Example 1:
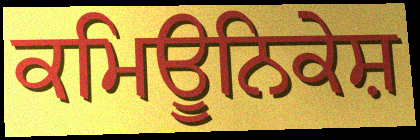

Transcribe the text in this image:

ਕਮਿਊਨਿਕੇਸ਼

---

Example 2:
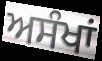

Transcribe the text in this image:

ਅਸੰਖਾਂ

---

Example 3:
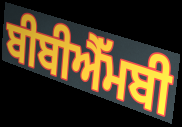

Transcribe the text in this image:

ਬੀਬੀਐੱਮਬੀ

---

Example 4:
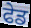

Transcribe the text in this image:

ਫੇਡ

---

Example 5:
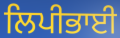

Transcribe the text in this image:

ਲਿਪੀਭਾਈ